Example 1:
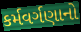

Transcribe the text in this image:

કર્મવર્ગણાનો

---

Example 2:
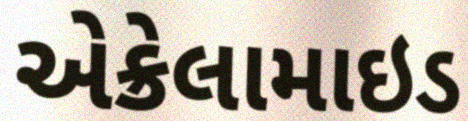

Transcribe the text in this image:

એક્રેલામાઇડ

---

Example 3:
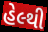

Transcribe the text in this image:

હેલ્થી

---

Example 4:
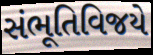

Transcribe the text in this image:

સંભૂતિવિજયે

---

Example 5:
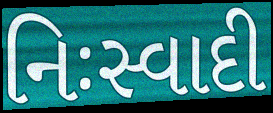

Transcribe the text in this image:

નિઃસ્વાદી